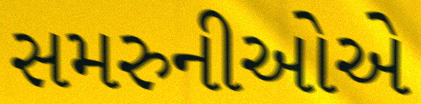
સમરુનીઓએ